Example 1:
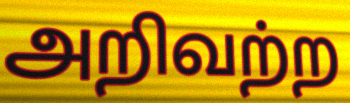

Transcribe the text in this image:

அறிவற்ற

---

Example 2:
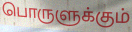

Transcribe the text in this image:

பொருளுக்கும்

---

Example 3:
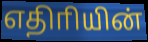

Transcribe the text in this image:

எதிரியின்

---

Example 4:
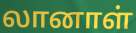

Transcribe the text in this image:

லானாள்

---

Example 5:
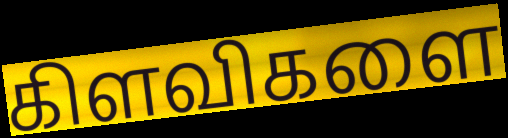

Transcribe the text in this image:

கிளவிகளை